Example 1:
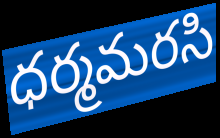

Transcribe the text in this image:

ధర్మమరసి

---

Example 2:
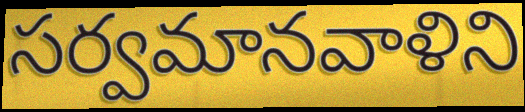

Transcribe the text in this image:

సర్వమానవాళిని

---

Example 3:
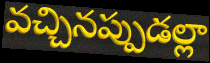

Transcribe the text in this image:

వచ్చినప్పుడల్లా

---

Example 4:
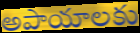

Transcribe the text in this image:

అపాయాలకు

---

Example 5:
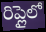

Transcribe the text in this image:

రిప్లైలో